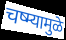
चष्म्यामुळे